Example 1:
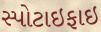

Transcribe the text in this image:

સ્પોટાઇફાઇ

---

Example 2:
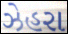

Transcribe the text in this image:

ઝેહરા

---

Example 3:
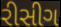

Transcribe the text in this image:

રીસીગ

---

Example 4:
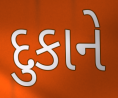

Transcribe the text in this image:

દુકાને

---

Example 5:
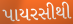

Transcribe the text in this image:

પાયરસીથી